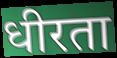
धीरता